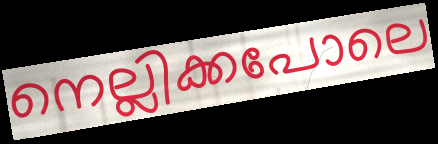
നെല്ലിക്കപോലെ